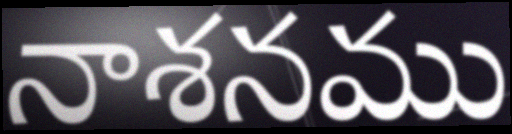
నాశనము